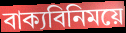
বাক্যবিনিময়ে